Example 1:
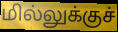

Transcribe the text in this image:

மில்லுக்குச்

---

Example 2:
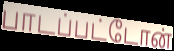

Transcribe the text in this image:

பாடப்பட்டோன்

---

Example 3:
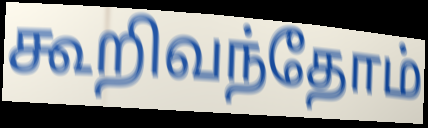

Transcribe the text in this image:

கூறிவந்தோம்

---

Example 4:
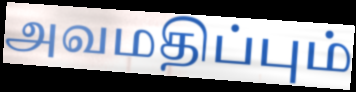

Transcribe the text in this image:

அவமதிப்பும்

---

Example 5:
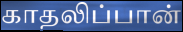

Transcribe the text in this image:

காதலிப்பான்